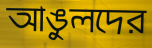
আঙুলদের